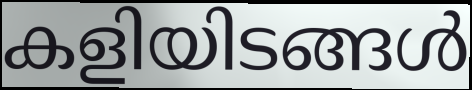
കളിയിടങ്ങൾ